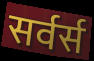
सर्वर्स